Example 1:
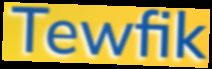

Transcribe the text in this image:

Tewfik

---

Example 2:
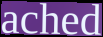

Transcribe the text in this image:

ached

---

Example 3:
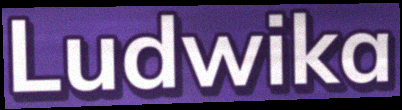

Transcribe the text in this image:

Ludwika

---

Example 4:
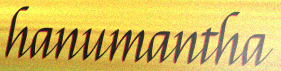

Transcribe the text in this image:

hanumantha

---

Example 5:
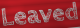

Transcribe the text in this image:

Leaved